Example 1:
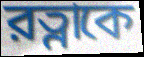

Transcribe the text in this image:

রত্নাকে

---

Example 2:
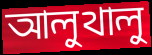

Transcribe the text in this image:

আলুথালু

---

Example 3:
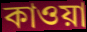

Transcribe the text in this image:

কাওয়া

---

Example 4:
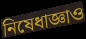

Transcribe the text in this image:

নিষেধাজ্ঞাও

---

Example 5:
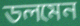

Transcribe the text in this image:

ডলমেন